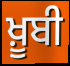
ਖ਼ੂਬੀ